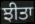
ਝੀਤਾ